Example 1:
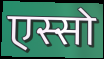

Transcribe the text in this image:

एस्सो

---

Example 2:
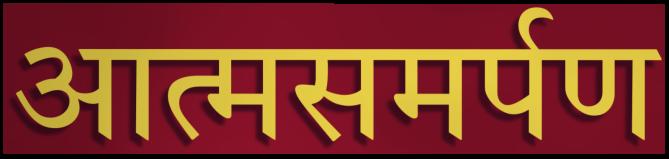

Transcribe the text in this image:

आत्‍मसमर्पण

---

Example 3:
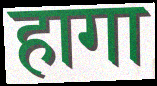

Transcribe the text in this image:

हागा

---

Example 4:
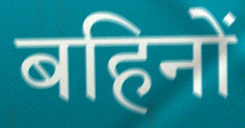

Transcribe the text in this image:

बहिनों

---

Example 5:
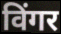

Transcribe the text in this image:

विंगर